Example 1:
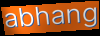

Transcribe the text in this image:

abhang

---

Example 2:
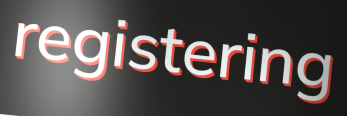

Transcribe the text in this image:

registering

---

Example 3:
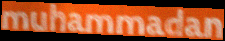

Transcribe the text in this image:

muhammadan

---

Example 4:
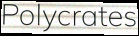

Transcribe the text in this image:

Polycrates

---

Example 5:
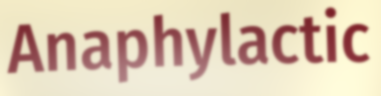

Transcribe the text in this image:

Anaphylactic